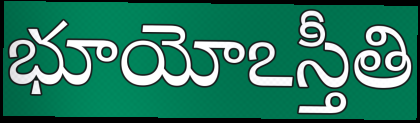
భూయోఽస్తీతి